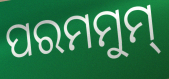
ପରମମୁମ୍